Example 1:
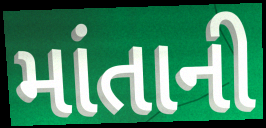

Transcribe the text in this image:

માંતાની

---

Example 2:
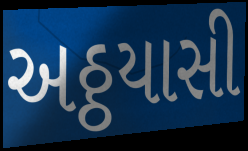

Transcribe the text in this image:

અઠ્ઠયાસી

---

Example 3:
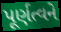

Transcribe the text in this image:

પૂર્ણત્વને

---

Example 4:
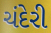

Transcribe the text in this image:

ચંદેરી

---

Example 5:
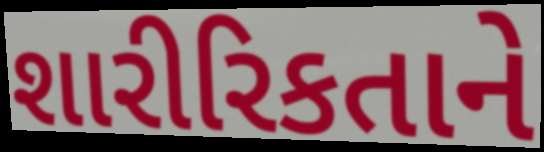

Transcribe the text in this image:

શારીરિકતાને